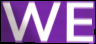
WE